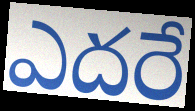
ఎదరే